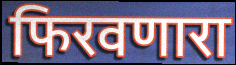
फिरवणारा